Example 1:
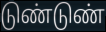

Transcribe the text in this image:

டுண்டுண்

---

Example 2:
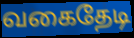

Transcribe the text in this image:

வகைதேடி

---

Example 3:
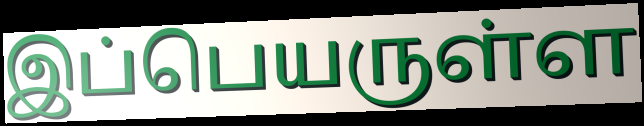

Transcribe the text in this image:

இப்பெயருள்ள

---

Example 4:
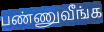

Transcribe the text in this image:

பண்ணுவீங்க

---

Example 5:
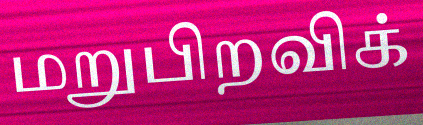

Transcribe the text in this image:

மறுபிறவிக்